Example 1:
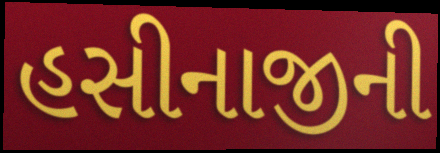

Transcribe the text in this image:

હસીનાજીની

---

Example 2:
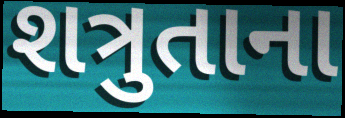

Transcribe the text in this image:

શત્રુતાના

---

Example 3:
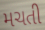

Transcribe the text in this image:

મચતી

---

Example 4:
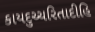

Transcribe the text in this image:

કાયદુચ્ચરિતાદીહિ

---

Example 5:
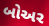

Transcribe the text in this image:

બોઅર